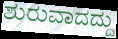
ಶುರುವಾದದ್ದು